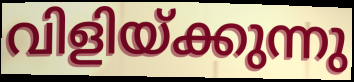
വിളിയ്ക്കുന്നു